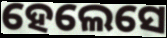
ହେଲେସେ